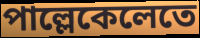
পাল্লেকেলেতে